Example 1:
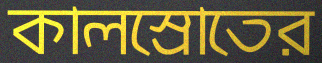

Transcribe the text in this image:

কালস্রোতের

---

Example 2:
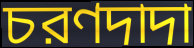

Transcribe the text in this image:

চরণদাদা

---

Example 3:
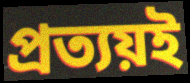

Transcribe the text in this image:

প্রত্যয়ই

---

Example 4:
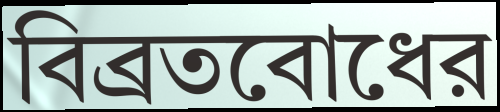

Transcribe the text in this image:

বিব্রতবোধের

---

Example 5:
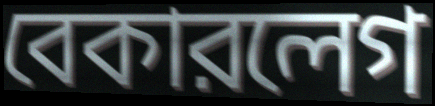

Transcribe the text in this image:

বেকারলেগ